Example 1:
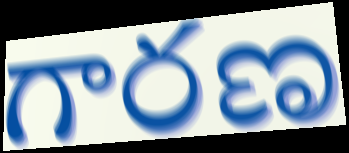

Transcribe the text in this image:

గారణ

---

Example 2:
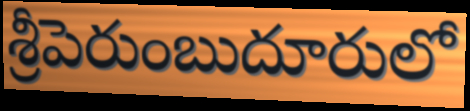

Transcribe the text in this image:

శ్రీపెరుంబుదూరులో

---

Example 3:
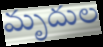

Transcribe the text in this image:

మృదుల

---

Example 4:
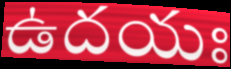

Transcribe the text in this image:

ఉదయః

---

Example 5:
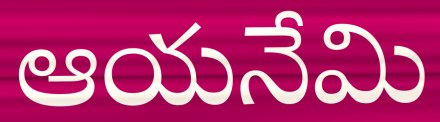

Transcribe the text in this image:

ఆయనేమి